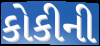
કોકીની